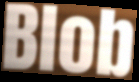
Blob